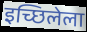
इच्छिलेला